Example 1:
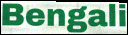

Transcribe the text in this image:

Bengali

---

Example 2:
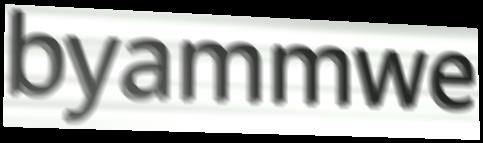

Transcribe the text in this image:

byammwe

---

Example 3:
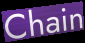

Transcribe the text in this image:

Chain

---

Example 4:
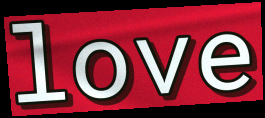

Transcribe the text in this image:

love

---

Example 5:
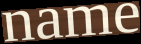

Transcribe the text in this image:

name